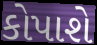
કોપાશે